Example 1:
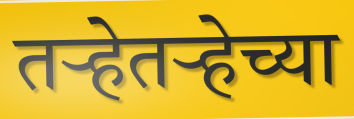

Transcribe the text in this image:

तऱ्हेतऱ्हेच्या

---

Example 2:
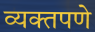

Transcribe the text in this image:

व्यक्तपणे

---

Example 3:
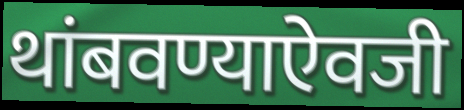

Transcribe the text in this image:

थांबवण्याऐवजी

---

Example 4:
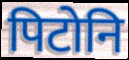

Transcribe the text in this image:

पिटोनि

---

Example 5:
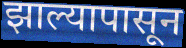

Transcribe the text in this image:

झाल्यापासून